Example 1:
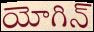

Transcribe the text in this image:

యోగిన్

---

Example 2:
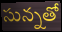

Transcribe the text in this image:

సున్నతో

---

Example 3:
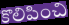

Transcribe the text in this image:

కొలిపించి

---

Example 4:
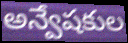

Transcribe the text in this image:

అన్వేషకుల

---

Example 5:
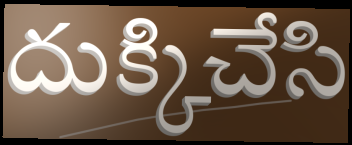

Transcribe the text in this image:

దుక్కిచేసి